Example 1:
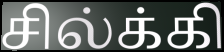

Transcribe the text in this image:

சில்க்கி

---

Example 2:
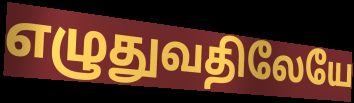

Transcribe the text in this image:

எழுதுவதிலேயே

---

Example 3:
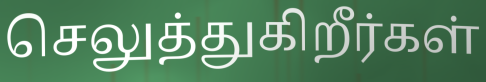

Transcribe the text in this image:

செலுத்துகிறீர்கள்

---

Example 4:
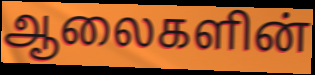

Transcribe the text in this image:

ஆலைகளின்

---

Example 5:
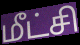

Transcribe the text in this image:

மீட்சி